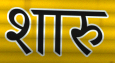
शारु